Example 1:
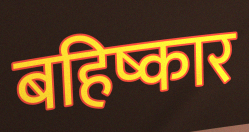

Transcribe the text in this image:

बहिष्‍कार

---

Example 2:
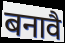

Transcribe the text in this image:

बनावै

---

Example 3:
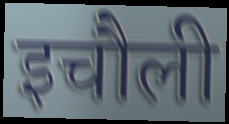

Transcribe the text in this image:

इचौली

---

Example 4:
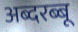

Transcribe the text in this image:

अब्दरब्बू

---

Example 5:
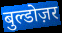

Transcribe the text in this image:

बुल्डोज़र